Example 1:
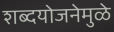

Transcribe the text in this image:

शब्दयोजनेमुळे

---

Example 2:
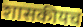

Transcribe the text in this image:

शासकीयच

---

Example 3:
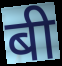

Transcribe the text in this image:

बी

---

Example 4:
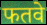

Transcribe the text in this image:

फतवे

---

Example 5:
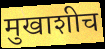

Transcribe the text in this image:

मुखाशीच